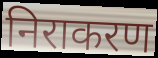
निराकरण